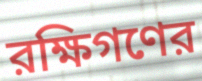
রক্ষিগণের